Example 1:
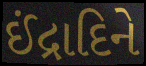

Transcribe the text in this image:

ઈંદ્રાદિને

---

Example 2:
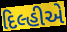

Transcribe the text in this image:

દિલ્હીએ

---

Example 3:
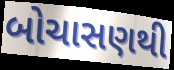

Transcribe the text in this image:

બોચાસણથી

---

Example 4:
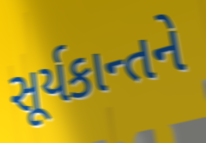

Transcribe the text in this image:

સૂર્યકાન્તને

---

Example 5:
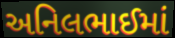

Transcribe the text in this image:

અનિલભાઈમાં